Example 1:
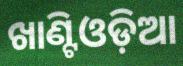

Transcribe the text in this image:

ଖାଣ୍ଟିଓଡ଼ିଆ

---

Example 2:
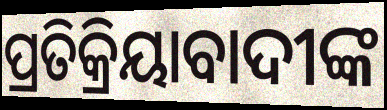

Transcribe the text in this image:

ପ୍ରତିକ୍ରିୟାବାଦୀଙ୍କ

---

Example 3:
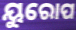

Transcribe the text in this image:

ୟୁରୋପ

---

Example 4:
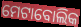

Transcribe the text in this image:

ମେଟାବୋଲିକ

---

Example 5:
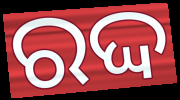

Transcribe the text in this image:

ରଦ୍ଦ